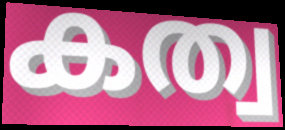
കത്വ